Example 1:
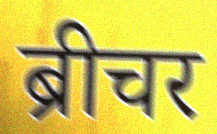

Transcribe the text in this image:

ब्रीचर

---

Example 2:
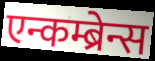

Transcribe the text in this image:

एन्कम्ब्रेन्स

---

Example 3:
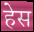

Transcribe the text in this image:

हेस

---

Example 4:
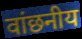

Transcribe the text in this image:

वांछनीय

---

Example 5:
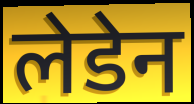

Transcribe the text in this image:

लेडेन